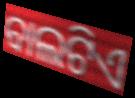
ବାଲଟିଏ